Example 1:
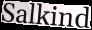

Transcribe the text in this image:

Salkind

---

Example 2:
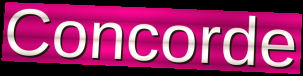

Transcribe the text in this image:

Concorde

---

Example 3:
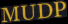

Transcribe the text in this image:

MUDP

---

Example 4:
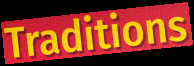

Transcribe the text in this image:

Traditions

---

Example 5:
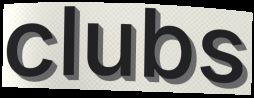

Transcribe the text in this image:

clubs